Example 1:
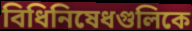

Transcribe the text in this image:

বিধিনিষেধগুলিকে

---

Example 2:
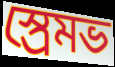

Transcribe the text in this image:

স্ত্রেমভ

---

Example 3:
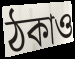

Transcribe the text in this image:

ঠকাও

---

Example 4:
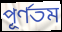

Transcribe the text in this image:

পূর্ণতম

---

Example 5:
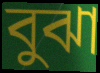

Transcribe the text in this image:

বুঝা